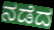
ನಡೆದ